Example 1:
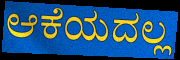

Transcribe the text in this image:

ಆಕೆಯದಲ್ಲ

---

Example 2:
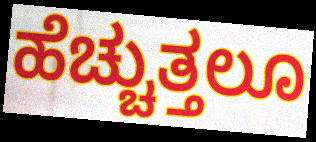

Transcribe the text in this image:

ಹೆಚ್ಚುತ್ತಲೂ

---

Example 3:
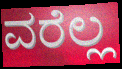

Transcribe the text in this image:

ವರೆಲ್ಲ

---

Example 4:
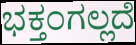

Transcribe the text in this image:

ಭಕ್ತಂಗಲ್ಲದೆ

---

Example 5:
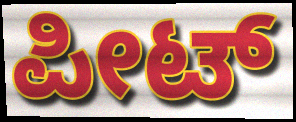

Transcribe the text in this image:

ಪೀಟ್